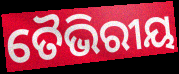
ତୈଭିରୀୟ